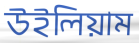
উইলিয়াম